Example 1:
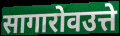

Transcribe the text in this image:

सागारोवउत्ते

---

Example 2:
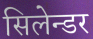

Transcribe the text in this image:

सिलेन्डर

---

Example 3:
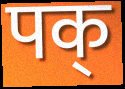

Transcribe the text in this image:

पक्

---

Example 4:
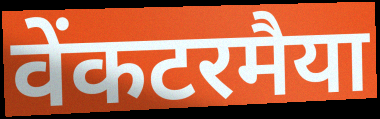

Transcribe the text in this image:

वेंकटरमैया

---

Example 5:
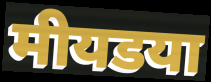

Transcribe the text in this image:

मीयडया